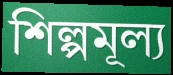
শিল্পমূল্য